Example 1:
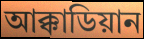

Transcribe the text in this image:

আক্কাডিয়ান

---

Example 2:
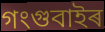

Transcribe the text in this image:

গংগুবাইৰ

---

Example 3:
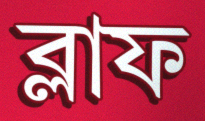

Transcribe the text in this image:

ব্লাফ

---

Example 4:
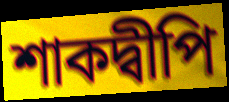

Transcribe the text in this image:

শাকদ্বীপি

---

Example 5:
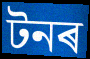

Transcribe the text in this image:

টনৰ